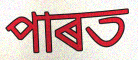
পাৰত